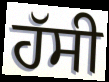
ਹੱਸੀ